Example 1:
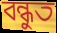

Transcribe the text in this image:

বন্ধুত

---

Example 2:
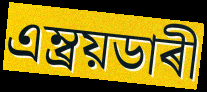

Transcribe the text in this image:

এম্ব্ৰয়ডাৰী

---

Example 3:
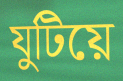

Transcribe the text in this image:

যুটিয়ে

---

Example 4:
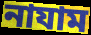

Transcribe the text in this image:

নাযাম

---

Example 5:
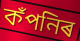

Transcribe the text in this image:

কঁপনিৰ